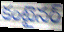
కంటైనర్